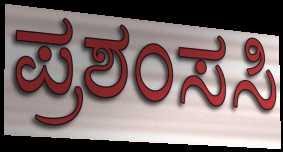
ಪ್ರಶಂಸಸಿ